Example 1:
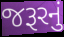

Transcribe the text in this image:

જરૂરનું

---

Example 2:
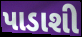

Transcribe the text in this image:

પાડાશી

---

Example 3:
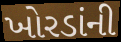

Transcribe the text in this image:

ખોરડાંની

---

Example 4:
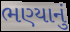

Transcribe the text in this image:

ભણ્યાનું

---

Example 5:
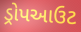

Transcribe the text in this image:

ડ્રોપઆઉટ